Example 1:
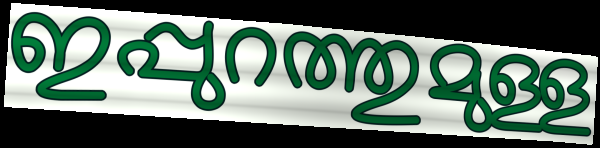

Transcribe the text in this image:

ഇപ്പുറത്തുമുള്ള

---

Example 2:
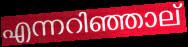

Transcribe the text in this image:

എന്നറിഞ്ഞാല്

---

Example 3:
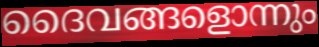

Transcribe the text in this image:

ദൈവങ്ങളൊന്നും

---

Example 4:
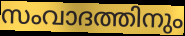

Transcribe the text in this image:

സംവാദത്തിനും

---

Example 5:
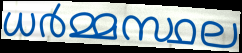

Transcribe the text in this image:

ധർമ്മസ്ഥല